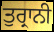
ਤੁਰ੍ਰਾਨੀ